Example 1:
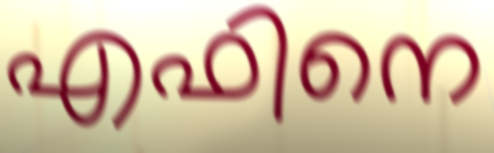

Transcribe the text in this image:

എഫിനെ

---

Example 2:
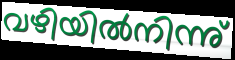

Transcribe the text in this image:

വഴിയിൽനിന്നു്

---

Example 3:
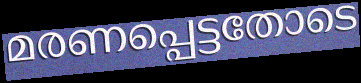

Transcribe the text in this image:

മരണപ്പെട്ടതോടെ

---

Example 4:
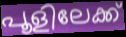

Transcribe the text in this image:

പൂളിലേക്ക്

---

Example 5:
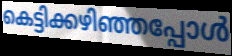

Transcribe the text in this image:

കെട്ടിക്കഴിഞ്ഞപ്പോൾ